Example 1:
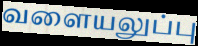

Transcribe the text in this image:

வளையலுப்பு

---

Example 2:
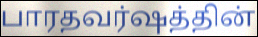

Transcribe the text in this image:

பாரதவர்ஷத்தின்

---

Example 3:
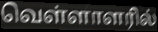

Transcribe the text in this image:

வெள்ளாளரில்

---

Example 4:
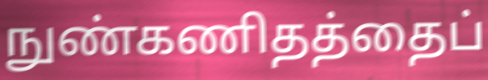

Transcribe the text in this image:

நுண்கணிதத்தைப்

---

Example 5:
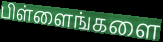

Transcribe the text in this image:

பிள்ளைங்களை